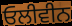
ਓਲੀਵੀਨ